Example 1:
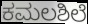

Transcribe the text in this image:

ಕಮಲಶಿಲೆ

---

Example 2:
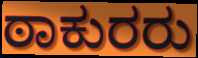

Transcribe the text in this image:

ಠಾಕುರರು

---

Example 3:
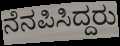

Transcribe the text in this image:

ನೆನಪಿಸಿದ್ದರು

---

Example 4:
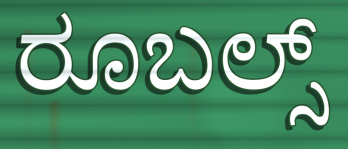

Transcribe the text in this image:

ರೂಬಲ್ಸ್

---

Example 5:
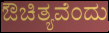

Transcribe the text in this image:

ಔಚಿತ್ಯವೆಂದು